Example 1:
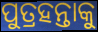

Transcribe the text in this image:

ପୁତ୍ରହନ୍ତାକୁ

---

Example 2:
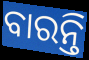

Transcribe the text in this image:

ବାରନ୍ତି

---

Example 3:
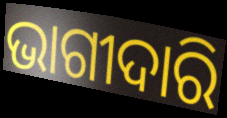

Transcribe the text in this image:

ଭାଗୀଦାରି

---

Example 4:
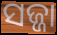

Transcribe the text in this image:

ସଜ୍ଜା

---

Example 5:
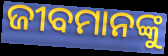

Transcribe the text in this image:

ଜୀବମାନଙ୍କୁ